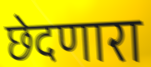
छेदणारा